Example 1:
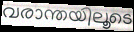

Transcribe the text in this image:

വരാന്തയിലൂടെ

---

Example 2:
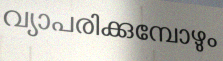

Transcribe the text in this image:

വ്യാപരിക്കുമ്പോഴും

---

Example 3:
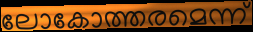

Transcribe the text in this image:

ലോകോത്തരമെന്ന്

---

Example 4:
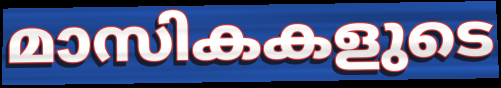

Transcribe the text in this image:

മാസികകളുടെ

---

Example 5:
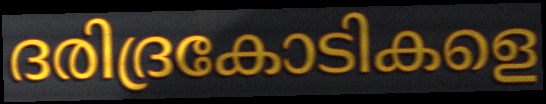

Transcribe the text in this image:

ദരിദ്രകോടികളെ